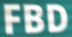
FBD